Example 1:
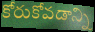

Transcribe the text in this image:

కోరుకోవడాన్ని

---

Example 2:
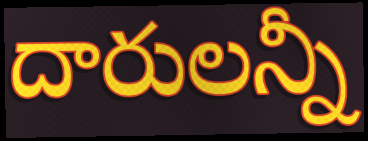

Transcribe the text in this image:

దారులన్నీ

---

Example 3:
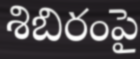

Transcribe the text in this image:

శిబిరంపై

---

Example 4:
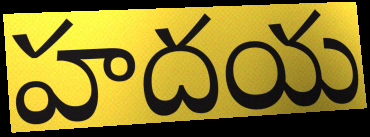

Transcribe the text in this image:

హదయ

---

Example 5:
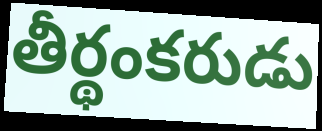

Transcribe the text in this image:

తీర్థంకరుడు